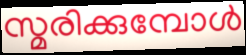
സ്മരിക്കുമ്പോൾ